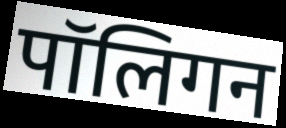
पॉलिगन